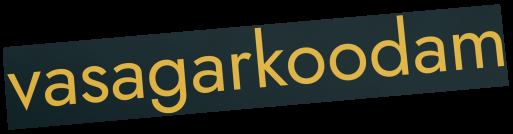
vasagarkoodam